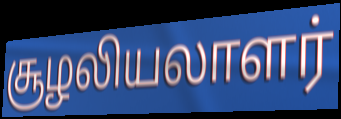
சூழலியலாளர்